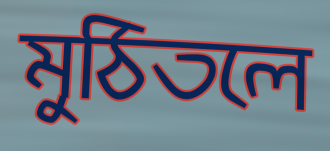
মুঠিতলে